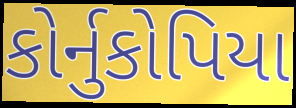
કોર્નુકોપિયા